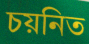
চয়নিত